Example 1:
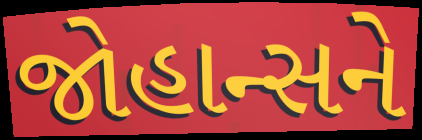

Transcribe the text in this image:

જોહાન્સને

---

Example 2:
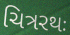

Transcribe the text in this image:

ચિત્રરથઃ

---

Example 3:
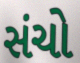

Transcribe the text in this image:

સંચો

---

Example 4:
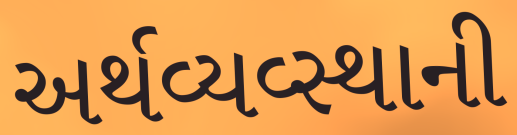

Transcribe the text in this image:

અર્થવ્યવ્સ્થાની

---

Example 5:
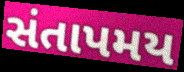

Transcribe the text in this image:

સંતાપમય